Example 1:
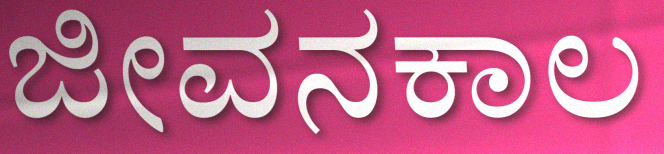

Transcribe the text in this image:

ಜೀವನಕಾಲ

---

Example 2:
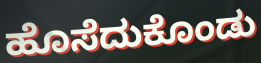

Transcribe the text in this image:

ಹೊಸೆದುಕೊಂಡು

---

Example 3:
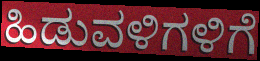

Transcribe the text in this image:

ಹಿಡುವಳಿಗಳಿಗೆ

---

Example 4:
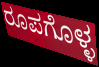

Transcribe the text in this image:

ರೂಪಗೊಳ್ಳ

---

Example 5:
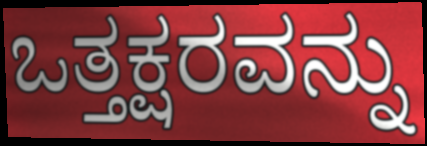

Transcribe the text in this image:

ಒತ್ತಕ್ಷರವನ್ನು